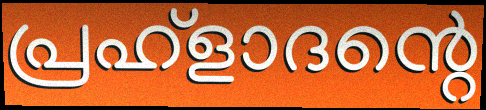
പ്രഹ്ളാദന്റെ